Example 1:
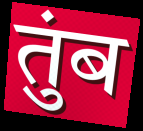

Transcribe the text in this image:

तुंब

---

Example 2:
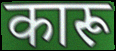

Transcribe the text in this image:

कारू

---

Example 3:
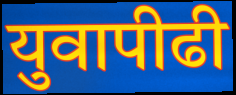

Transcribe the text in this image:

युवापीढी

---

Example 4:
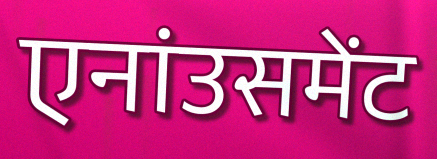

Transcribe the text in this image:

एनांउसमेंट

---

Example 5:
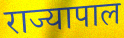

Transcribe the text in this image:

राज्यापाल